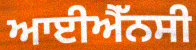
ਆਈਐੱਨਸੀ